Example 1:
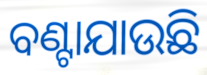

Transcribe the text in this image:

ବଣ୍ଟାଯାଉଛି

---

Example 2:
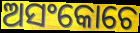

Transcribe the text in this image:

ଅସଂକୋଚେ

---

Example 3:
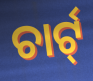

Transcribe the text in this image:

ଚାର୍ଟ୍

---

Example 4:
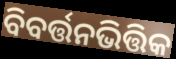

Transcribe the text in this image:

ବିବର୍ତ୍ତନଭିତ୍ତିକ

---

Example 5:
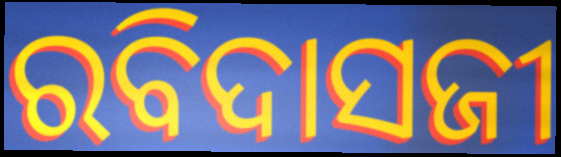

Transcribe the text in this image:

ରବିଦାସଜୀ